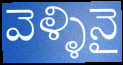
వెళ్ళినై